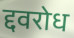
द्दवरोध